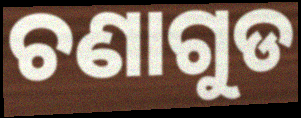
ଚଣାଗୁଡ